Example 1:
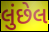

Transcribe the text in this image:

લુંછેલ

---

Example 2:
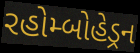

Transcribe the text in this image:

રહોમ્બોહેડ્રન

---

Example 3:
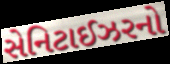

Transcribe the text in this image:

સેનિટાઈઝરનો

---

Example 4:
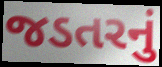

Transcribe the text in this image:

જડતરનું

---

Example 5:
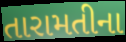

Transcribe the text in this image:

તારામતીના